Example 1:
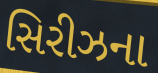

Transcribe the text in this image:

સિરીઝના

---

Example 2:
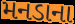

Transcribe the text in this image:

મનડાના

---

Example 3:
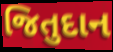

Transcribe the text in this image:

જિતુદાન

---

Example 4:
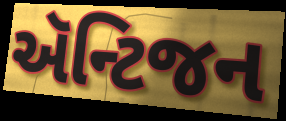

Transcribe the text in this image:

ઍન્ટિજન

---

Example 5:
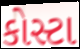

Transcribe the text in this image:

કોસ્ટા